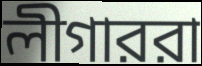
লীগাররা